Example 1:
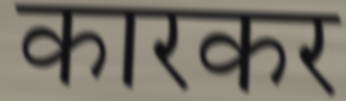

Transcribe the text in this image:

कारकर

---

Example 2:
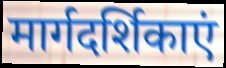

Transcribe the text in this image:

मार्गदर्शिकाएं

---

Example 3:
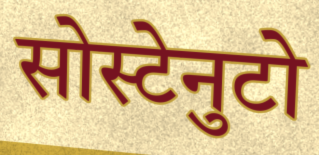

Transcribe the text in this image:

सोस्टेनुटो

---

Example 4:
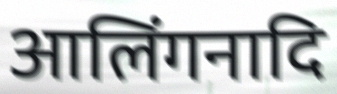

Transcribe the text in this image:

आलिंगनादि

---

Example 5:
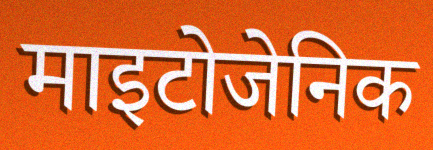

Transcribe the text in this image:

माइटोजेनिक